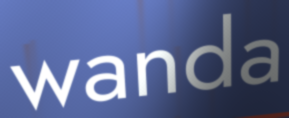
wanda